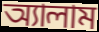
অ্যালাম